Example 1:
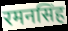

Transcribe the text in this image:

रमनसिंह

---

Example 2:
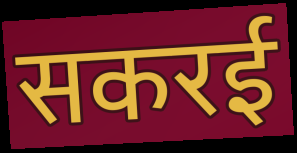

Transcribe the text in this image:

सकरई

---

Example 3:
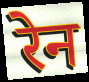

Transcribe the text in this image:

रेन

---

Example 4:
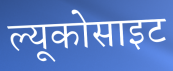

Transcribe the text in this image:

ल्यूकोसाइट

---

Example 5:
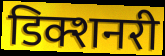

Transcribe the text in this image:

डिक्शनरी